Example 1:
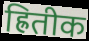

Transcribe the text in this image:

ह्रितीक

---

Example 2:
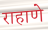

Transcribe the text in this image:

राहाणे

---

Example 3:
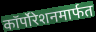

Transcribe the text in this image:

कॉर्पोरेशनमार्फत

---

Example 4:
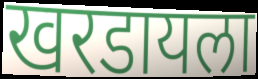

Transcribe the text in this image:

खरडायला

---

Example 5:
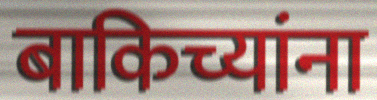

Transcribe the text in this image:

बाकिच्यांना